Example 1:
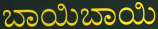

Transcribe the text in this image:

ಬಾಯಿಬಾಯಿ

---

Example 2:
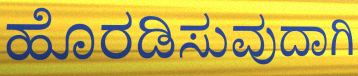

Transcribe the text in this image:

ಹೊರಡಿಸುವುದಾಗಿ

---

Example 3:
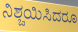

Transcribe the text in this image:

ನಿಶ್ಚಯಿಸಿದರೂ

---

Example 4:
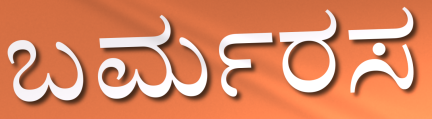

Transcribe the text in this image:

ಬರ್ಮರಸ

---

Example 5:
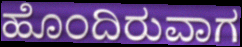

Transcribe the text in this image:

ಹೊಂದಿರುವಾಗ